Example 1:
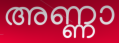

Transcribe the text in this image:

അണ്ണാ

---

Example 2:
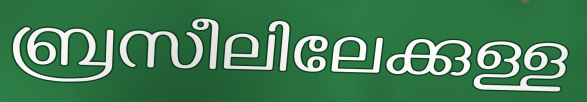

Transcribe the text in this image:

ബ്രസീലിലേക്കുള്ള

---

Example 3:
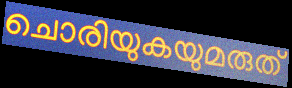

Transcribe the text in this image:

ചൊരിയുകയുമരുത്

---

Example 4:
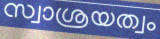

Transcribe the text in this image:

സ്വാശ്രയത്വം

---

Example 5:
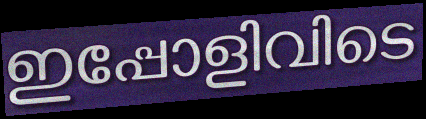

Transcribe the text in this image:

ഇപ്പോളിവിടെ